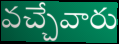
వచ్చేవారు